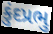
કુંદપ્રભુ